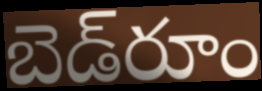
బెడ్‌రూం